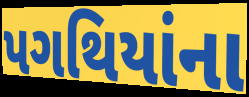
પગથિયાંના